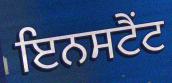
ਇਨਸਟੈਂਟ